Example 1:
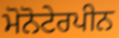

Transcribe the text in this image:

ਮੋਨੋਟੇਰਪੀਨ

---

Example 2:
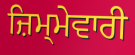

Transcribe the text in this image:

ਜ਼ਿਮ੍ਮੇਵਾਰੀ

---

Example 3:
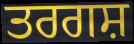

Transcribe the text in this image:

ਤਰਗਸ਼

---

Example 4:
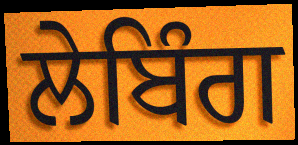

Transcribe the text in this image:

ਲੇਬਿੰਗ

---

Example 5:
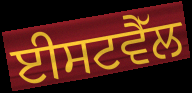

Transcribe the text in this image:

ਈਸਟਵੈੱਲ